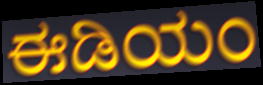
ಈಡಿಯಂ